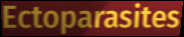
Ectoparasites